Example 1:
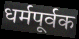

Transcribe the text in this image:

धर्मपूर्वक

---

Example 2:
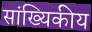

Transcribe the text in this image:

सांख्यिकीय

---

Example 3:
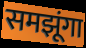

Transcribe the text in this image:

समझूंगा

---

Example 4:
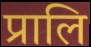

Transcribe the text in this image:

प्रालि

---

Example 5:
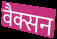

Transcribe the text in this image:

वैक्सन